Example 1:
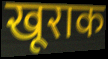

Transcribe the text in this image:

खूराक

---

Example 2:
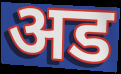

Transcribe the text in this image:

अड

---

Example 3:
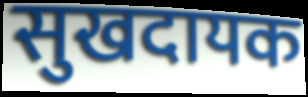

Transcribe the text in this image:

सुखदायक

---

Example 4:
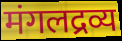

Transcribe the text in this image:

मंगलद्रव्य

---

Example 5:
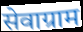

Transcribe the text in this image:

सेवाग्राम